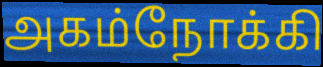
அகம்நோக்கி